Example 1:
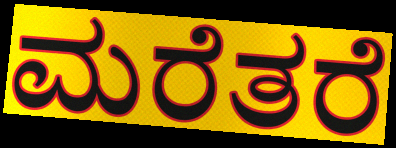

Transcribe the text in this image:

ಮರೆತರೆ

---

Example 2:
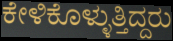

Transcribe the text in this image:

ಕೇಳಿಕೊಳ್ಳುತ್ತಿದ್ದರು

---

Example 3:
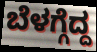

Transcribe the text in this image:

ಬೆಳಗ್ಗೆದ್ದ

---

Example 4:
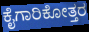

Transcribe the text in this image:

ಕೈಗಾರಿಕೋತ್ತರ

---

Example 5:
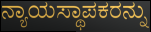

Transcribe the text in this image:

ನ್ಯಾಯಸ್ಥಾಪಕರನ್ನು